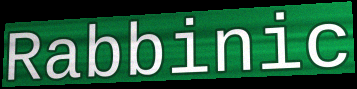
Rabbinic